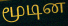
மூடின